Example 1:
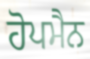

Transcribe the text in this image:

ਹੋਪਮੈਨ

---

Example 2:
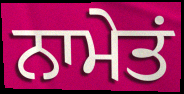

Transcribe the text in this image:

ਨਾਮੇਤਂ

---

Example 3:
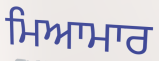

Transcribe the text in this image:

ਮਿਆਮਾਰ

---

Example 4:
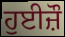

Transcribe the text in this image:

ਹੁਈਜ਼ੌ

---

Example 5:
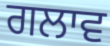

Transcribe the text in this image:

ਗਲਾਵ